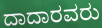
ದಾದಾರವರು